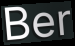
Ber